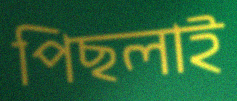
পিছলাই